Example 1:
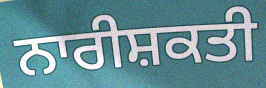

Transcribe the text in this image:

ਨਾਰੀਸ਼ਕਤੀ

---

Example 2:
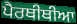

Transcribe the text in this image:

ਪੈਰਥੀਥੀਆ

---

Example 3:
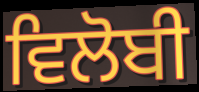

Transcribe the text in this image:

ਵਿਲੋਬੀ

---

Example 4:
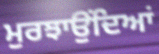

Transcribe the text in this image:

ਮੁਰਝਾਉਂਦਿਆਂ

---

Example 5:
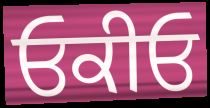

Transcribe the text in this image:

ਓਕੀਓ